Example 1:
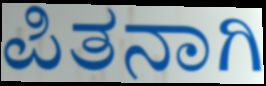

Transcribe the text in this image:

ಪಿತನಾಗಿ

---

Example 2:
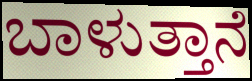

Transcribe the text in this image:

ಬಾಳುತ್ತಾನೆ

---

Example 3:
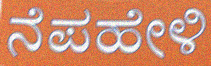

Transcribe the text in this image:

ನೆಪಹೇಳಿ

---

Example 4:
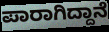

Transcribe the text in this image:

ಪಾರಾಗಿದ್ದಾನೆ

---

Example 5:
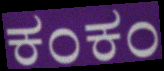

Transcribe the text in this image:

ಕಂಕಂ